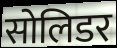
सोलिडर